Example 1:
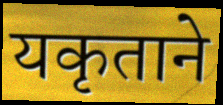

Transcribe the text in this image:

यकृताने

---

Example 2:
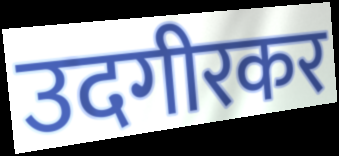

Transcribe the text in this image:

उदगीरकर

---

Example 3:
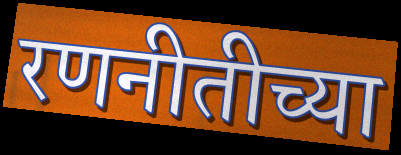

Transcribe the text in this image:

रणनीतीच्या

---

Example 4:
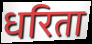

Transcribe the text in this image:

धरिता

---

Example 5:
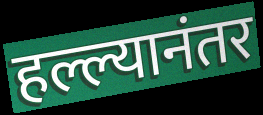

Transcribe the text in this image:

हल्ल्यानंतर